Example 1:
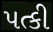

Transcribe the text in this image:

પત્કી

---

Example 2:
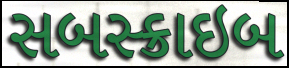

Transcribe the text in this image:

સબસ્ક્રાઇબ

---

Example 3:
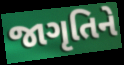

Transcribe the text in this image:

જાગૃતિને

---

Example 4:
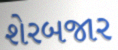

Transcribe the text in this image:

શેરબજાર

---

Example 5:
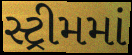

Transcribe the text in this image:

સ્ટ્રીમમાં